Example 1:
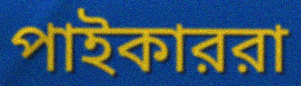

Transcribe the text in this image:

পাইকাররা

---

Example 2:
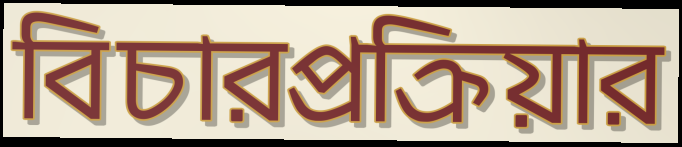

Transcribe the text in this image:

বিচারপ্রক্রিয়ার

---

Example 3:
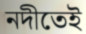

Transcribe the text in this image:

নদীতেই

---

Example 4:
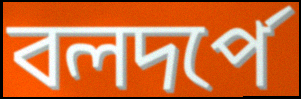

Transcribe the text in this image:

বলদর্পে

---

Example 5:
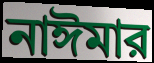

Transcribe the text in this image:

নাঈমার